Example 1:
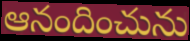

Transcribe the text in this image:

ఆనందించును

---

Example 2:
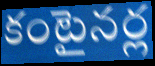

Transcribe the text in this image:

కంటైనర్ల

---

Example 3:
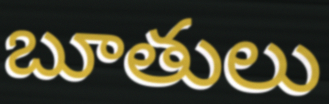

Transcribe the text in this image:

బూతులు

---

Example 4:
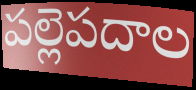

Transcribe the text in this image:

పల్లెపదాల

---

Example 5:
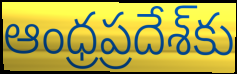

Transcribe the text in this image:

ఆంధ్రప్రదేశ్‌కు